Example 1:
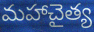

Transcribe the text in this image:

మహాచైత్య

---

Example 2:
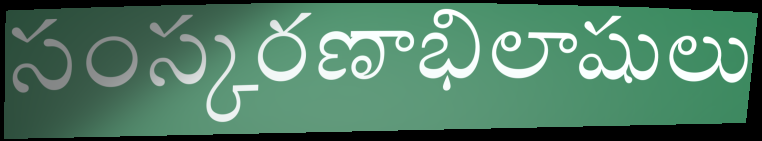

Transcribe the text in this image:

సంస్కరణాభిలాషులు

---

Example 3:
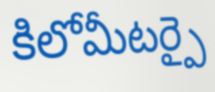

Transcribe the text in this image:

కిలోమీటర్పై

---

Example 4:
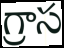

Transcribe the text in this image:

గ్రాస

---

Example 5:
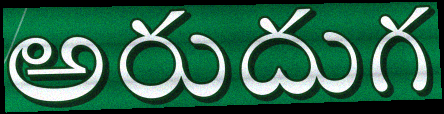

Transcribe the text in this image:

అరుదుగ